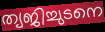
ത്യജിച്ചുടനെ